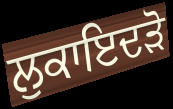
ਲੁਕਾਇਦੜੋ